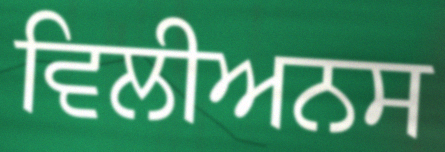
ਵਿਲੀਅਨਸ